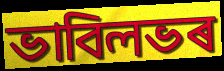
ভাবিলভৰ